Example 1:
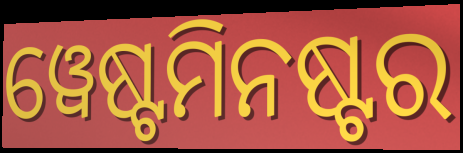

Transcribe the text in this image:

ୱେଷ୍ଟମିନଷ୍ଟର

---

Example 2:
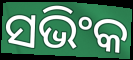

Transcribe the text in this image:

ସଭିଂକ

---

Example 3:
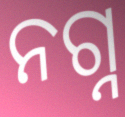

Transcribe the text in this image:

ନଗ୍ନ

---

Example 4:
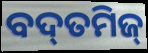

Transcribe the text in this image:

ବଦ୍‌ତମିଜ୍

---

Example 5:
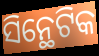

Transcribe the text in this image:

ସିନ୍ଥେଟିକ